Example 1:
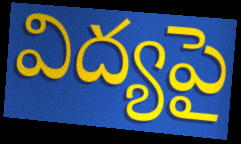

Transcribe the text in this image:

విద్యపై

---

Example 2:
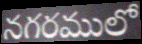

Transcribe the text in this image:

నగరములో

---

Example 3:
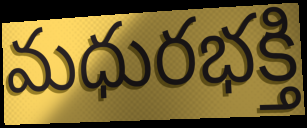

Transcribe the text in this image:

మధురభక్తి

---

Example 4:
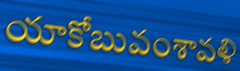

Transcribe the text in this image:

యాకోబువంశావళి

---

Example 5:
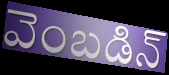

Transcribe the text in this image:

వెంబడిన్